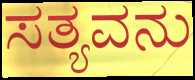
ಸತ್ಯವನು